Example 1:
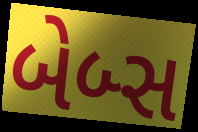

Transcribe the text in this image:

બેબ્સ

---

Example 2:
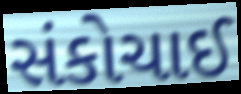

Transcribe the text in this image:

સંકોચાઈ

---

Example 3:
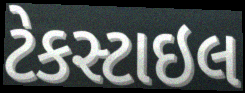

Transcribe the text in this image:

ટેકસ્ટાઇલ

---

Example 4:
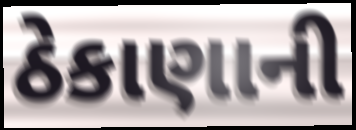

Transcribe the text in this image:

ઠેકાણાની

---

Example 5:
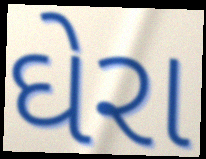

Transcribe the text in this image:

ઘેરા